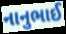
નાનુભાઈ